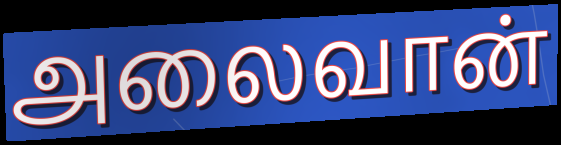
அலைவான்